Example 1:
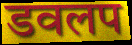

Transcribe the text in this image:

डवलप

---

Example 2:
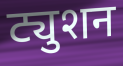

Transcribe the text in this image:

ट्युशन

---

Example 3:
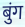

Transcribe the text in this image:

बुंग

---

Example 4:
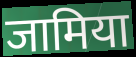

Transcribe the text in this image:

जामिया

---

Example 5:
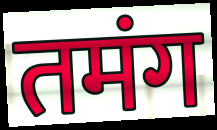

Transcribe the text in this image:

तमंग